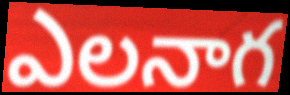
ఎలనాగ